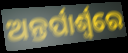
ଅନ୍ତର୍ପାର୍ଶ୍ୱରେ